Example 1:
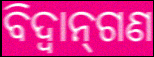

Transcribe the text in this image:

ବିଦ୍ୱାନ୍‌ଗଣ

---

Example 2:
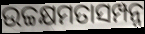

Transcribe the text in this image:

ଉଚ୍ଚକ୍ଷମତାସମ୍ପନ୍ନ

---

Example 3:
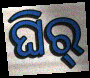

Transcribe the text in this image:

ଘିର୍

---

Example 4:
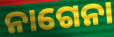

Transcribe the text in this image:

ନାଗେନା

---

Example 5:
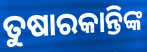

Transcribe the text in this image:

ତୁଷାରକାନ୍ତିଙ୍କ